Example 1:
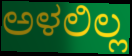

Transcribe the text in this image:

ಅಳಲಿಲ್ಲ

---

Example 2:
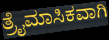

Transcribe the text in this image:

ತ್ರೈಮಾಸಿಕವಾಗಿ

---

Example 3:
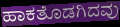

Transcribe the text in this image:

ಹಾಕತೊಡಗಿದವು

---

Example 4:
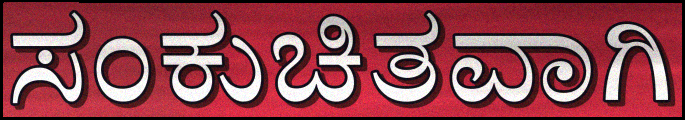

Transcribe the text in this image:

ಸಂಕುಚಿತವಾಗಿ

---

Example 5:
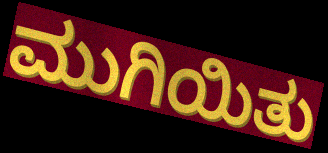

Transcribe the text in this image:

ಮುಗಿಯಿತು